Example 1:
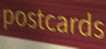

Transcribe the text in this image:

postcards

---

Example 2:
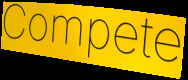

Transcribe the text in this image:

Compete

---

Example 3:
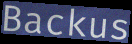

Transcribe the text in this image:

Backus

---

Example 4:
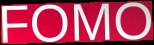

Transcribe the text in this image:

FOMO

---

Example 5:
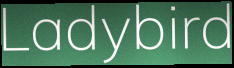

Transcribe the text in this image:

Ladybird